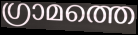
ഗ്രാമത്തെ